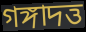
গঙ্গাদত্ত